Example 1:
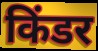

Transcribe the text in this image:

किंडर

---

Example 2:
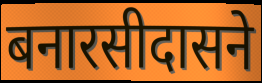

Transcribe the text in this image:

बनारसीदासने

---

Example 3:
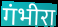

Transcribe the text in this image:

गंभीरा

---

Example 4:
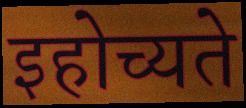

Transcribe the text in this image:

इहोच्यते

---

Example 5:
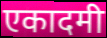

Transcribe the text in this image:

एकादमी